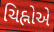
ચિહ્નોએ